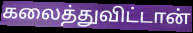
கலைத்துவிட்டான்